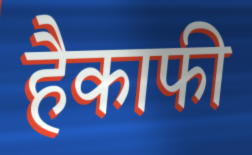
हैकाफी